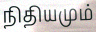
நிதியமும்